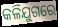
କଳିଯୁଗରେ